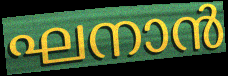
ഘനാൻ